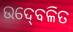
ଉଦ୍‍ବେଳିତ